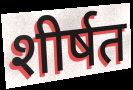
शीर्षत